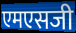
एमएसजी